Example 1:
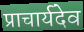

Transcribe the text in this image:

प्राचार्यदेव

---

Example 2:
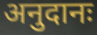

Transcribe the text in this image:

अनुदानः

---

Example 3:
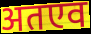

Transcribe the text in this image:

अतएव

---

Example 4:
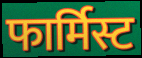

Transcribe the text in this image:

फार्मिस्ट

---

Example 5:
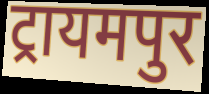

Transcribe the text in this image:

ट्रायमपुर